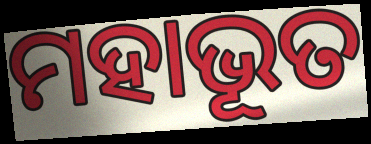
ମହାଭୂତ